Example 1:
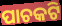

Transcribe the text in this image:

ପାଚକଟି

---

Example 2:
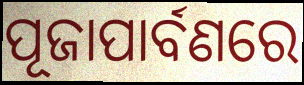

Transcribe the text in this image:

ପୂଜାପାର୍ବଣରେ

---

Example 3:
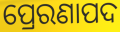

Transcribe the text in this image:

ପ୍ରେରଣାପଦ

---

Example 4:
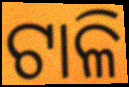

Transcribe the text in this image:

ଟାଳି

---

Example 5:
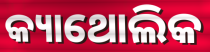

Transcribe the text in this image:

କ୍ୟାଥୋଲିକ